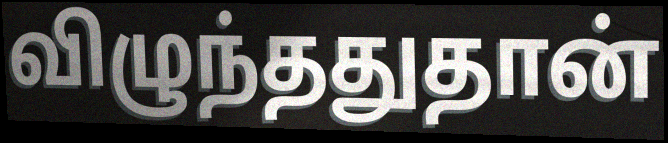
விழுந்ததுதான்